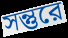
সন্তুরে